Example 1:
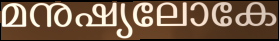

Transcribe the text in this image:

മനുഷ്യലോകേ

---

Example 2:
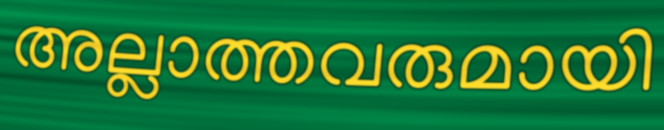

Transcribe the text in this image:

അല്ലാത്തവരുമായി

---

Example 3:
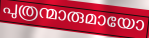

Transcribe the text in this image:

പുത്രന്മാരുമായോ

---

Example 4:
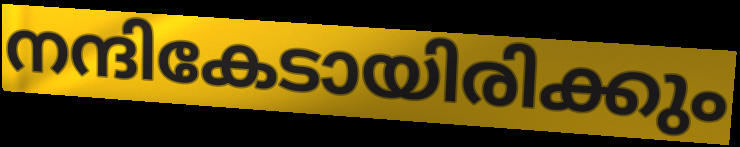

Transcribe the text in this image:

നന്ദികേടായിരിക്കും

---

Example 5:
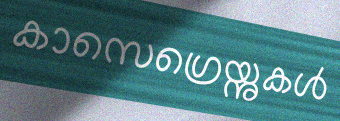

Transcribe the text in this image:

കാസെഗ്രെയ്നുകൾ